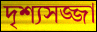
দৃশ্যসজ্জা